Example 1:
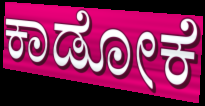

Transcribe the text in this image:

ಕಾಡೋಕೆ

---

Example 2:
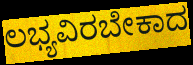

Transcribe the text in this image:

ಲಭ್ಯವಿರಬೇಕಾದ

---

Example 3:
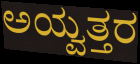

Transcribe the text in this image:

ಅಯ್ವತ್ತರ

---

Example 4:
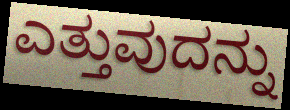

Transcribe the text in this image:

ಎತ್ತುವುದನ್ನು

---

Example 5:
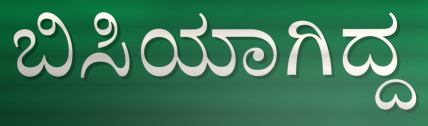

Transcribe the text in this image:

ಬಿಸಿಯಾಗಿದ್ದ